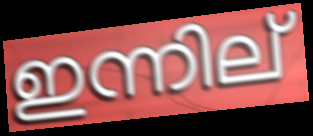
ഇന്നില്